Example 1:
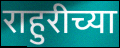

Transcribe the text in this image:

राहुरीच्या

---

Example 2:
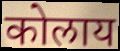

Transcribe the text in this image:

कोलाय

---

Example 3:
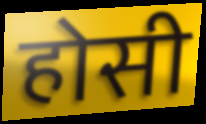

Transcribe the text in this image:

होसी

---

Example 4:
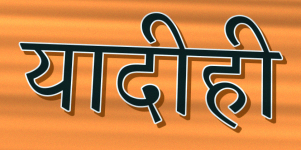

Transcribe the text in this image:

यादीही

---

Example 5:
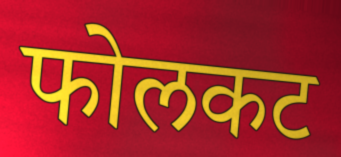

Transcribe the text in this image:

फोलकट